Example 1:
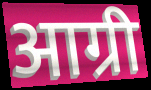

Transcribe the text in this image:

आग्री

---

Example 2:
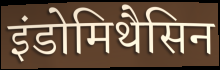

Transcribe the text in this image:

इंडोमिथैसिन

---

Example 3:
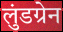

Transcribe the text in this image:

लुंडग्रेन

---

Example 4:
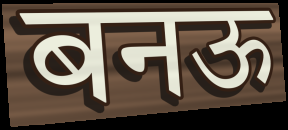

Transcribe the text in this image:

बनऊ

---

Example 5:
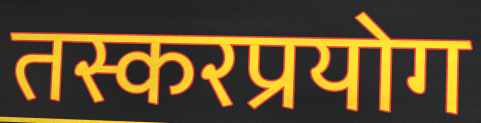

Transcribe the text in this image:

तस्करप्रयोग